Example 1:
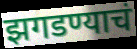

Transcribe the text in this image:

झगडण्याचं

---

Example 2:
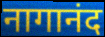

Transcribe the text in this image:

नागानंद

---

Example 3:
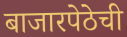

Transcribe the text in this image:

बाजारपेठेची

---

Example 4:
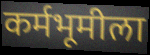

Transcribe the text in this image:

कर्मभूमीला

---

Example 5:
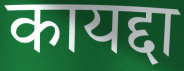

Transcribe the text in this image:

कायद्दा